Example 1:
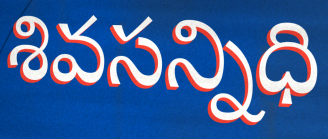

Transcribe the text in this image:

శివసన్నిధి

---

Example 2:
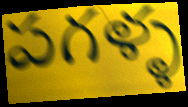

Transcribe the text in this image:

పగళ్ళ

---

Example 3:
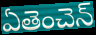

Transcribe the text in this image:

ఏతెంచెన్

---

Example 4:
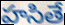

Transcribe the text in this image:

హసితే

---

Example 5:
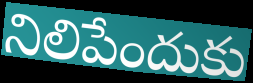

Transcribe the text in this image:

నిలిపేందుకు